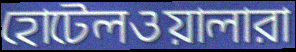
হোটেলওয়ালারা